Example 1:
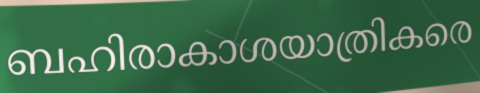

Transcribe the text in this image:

ബഹിരാകാശയാത്രികരെ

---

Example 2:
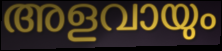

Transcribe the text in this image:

അളവായും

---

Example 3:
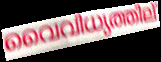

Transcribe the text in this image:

വൈവിധ്യത്തില്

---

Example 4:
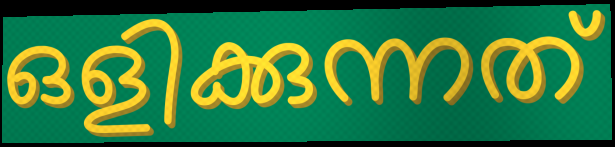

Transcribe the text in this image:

ഒളിക്കുന്നത്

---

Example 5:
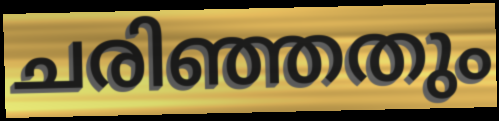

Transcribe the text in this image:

ചരിഞ്ഞതും